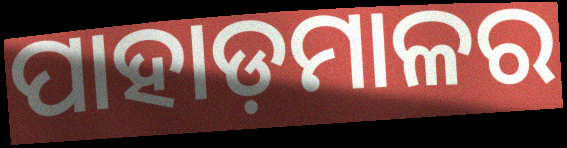
ପାହାଡ଼ମାଳର